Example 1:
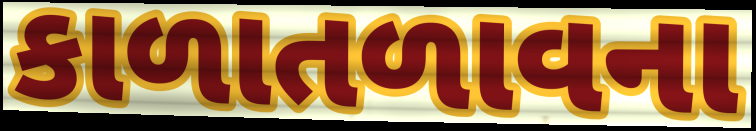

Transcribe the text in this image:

કાળાતળાવના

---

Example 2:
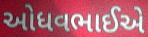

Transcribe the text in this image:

ઓધવભાઈએ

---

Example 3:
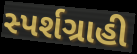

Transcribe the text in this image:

સ્પર્શગ્રાહી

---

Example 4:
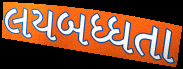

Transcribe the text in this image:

લયબધ્ધતા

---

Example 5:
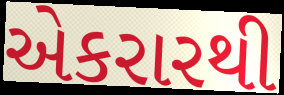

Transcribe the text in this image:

એકરારથી